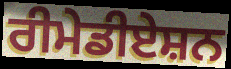
ਰੀਮੇਡੀਏਸ਼ਨ